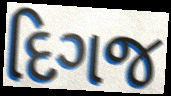
દિગજ